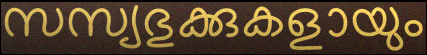
സസ്യഭുക്കുകളായും